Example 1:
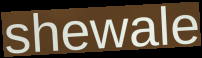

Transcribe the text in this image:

shewale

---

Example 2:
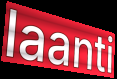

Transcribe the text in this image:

laanti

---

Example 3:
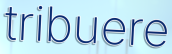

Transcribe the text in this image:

tribuere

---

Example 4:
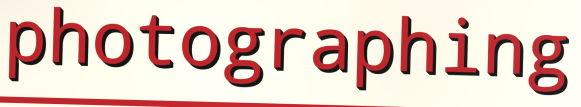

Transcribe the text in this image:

photographing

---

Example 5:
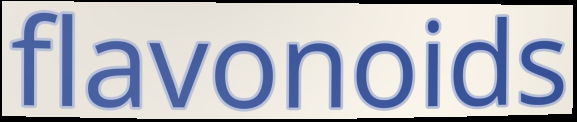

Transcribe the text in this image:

flavonoids